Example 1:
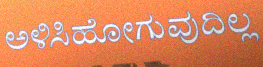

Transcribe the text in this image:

ಅಳಿಸಿಹೋಗುವುದಿಲ್ಲ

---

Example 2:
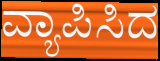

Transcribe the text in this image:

ವ್ಯಾಪಿಸಿದ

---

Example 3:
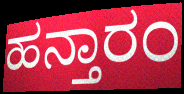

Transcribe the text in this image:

ಹನ್ತಾರಂ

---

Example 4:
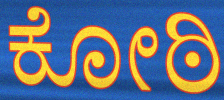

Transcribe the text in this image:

ಕೋಠಿ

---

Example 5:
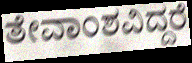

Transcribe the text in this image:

ತೇವಾಂಶವಿದ್ದರೆ